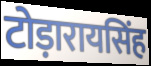
टोड़ारायसिंह